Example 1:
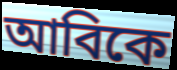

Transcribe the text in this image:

আবিকে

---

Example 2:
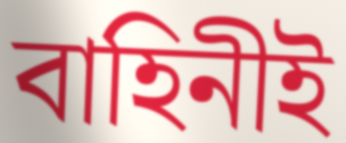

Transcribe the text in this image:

বাহিনীই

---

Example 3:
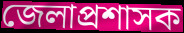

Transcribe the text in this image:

জেলাপ্রশাসক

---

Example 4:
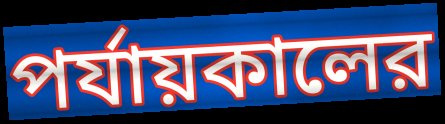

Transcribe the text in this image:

পর্যায়কালের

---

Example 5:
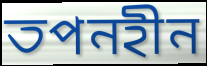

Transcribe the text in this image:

তপনহীন